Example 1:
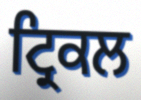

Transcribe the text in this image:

ਟ੍ਰਿਕਲ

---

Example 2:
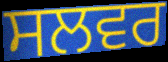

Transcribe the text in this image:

ਸਲਵਰ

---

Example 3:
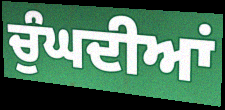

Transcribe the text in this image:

ਚੁੰਘਦੀਆਂ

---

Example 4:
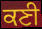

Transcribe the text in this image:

ਕਣੀ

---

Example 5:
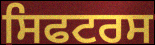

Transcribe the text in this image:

ਸਿਫਟਰਸ